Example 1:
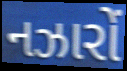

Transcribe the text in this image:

નઝારોં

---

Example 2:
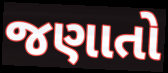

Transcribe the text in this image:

જણાતો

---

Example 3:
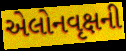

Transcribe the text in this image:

એલોનવૃક્ષની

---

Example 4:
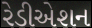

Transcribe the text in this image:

રેડીએશન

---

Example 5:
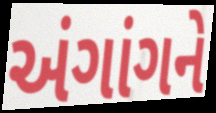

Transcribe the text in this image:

અંગાંગને